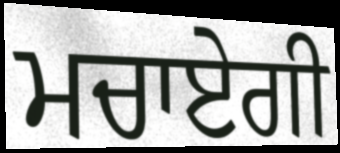
ਮਚਾਏਗੀ